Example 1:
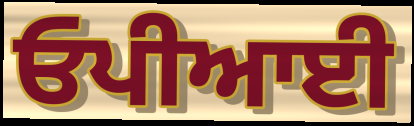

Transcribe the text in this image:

ਓਪੀਆਈ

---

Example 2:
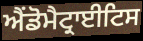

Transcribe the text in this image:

ਐਂਡੋਮੈਟ੍ਰਾਈਟਿਸ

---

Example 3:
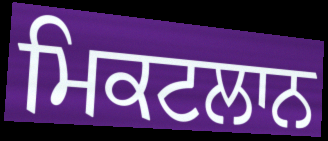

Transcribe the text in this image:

ਮਿਕਟਲਾਨ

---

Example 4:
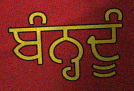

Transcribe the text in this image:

ਬੰਨ੍ਹਦੂੰ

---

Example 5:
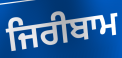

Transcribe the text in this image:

ਜਿਰੀਬਾਮ